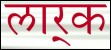
लार्क